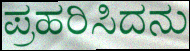
ಪ್ರಹರಿಸಿದನು